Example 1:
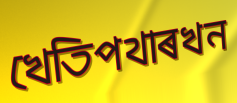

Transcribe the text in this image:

খেতিপথাৰখন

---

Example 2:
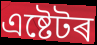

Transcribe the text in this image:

এষ্টেটৰ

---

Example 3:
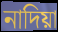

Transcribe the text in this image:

নাদিয়া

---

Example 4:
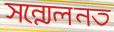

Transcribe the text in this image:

সন্মেলনত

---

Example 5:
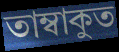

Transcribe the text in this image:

তাম্বাকুত